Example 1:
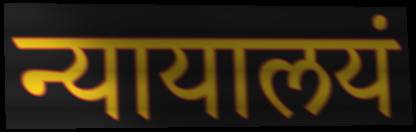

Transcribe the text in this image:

न्यायालयं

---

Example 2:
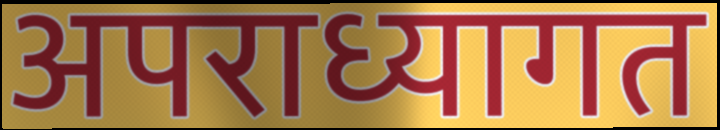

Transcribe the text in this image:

अपराध्यागत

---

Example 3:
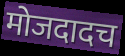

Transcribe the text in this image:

मोजदादच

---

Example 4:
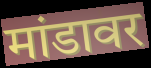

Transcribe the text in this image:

मांडावर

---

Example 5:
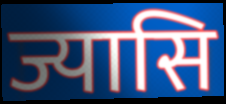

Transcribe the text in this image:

ज्यासि